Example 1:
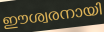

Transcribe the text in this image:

ഈശ്വരനായി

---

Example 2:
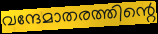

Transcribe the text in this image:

വന്ദേമാതരത്തിന്റെ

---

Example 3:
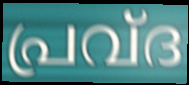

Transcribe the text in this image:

പ്രവ്ദ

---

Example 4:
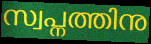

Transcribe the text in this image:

സ്വപ്നത്തിനു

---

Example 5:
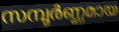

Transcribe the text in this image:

സമ്പൂർണ്ണമായ